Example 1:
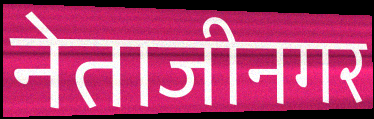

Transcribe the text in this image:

नेताजीनगर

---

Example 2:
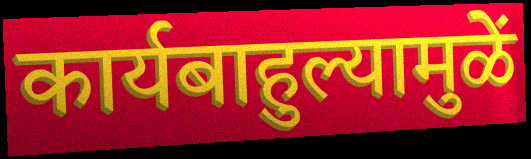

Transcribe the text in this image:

कार्यबाहुल्यामुळें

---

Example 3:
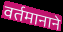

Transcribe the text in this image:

वर्तमानाने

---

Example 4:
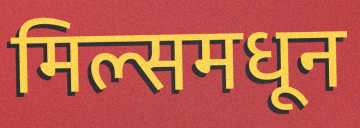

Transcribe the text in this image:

मिल्समधून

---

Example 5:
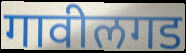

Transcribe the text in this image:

गावीलगड